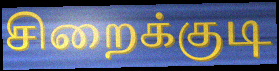
சிறைக்குடி